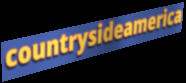
countrysideamerica